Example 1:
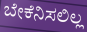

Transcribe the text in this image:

ಬೇಕೆನಿಸಲಿಲ್ಲ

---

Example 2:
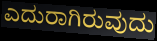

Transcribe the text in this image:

ಎದುರಾಗಿರುವುದು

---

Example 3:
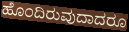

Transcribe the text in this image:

ಹೊಂದಿರುವುದಾದರೂ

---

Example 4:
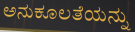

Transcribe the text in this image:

ಅನುಕೂಲತೆಯನ್ನು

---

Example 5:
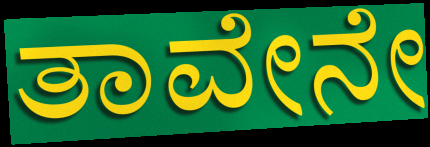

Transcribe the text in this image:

ತಾವೇನೇ